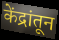
केंद्रांतून